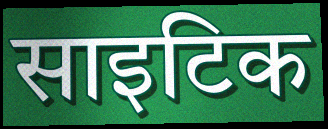
साइटिक